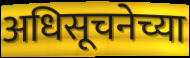
अधिसूचनेच्या